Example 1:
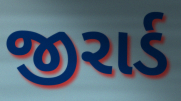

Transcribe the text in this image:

જીરાર્ડ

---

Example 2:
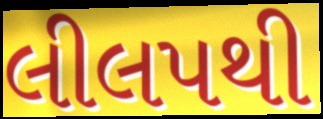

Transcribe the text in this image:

લીલપથી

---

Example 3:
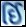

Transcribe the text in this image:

ઈિ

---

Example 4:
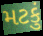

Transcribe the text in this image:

મટકું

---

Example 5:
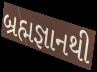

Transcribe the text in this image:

બ્રહ્મજ્ઞાનથી